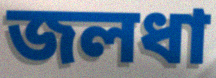
জলধা